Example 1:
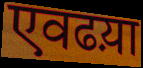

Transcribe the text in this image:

एवढय़ा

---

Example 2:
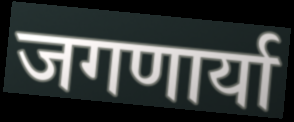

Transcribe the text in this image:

जगणार्या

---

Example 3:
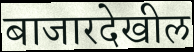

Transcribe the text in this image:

बाजारदेखील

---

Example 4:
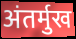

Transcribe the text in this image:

अंतर्मुख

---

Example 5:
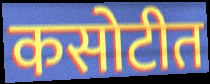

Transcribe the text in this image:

कसोटीत